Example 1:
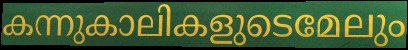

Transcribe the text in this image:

കന്നുകാലികളുടെമേലും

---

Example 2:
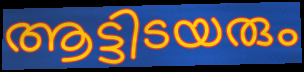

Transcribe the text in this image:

ആട്ടിടയരും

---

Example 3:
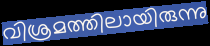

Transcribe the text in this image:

വിശ്രമത്തിലായിരുന്നു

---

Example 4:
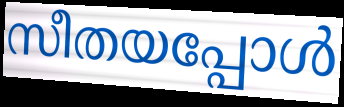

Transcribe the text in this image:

സീതയപ്പോൾ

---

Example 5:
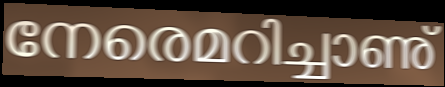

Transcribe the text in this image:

നേരെമറിച്ചാണു്